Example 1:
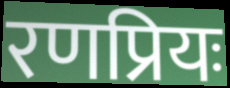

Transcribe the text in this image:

रणप्रियः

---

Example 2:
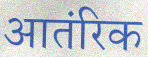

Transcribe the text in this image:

आतंरिक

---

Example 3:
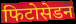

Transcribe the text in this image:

फिटोसेडन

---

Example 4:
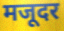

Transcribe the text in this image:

मजूदर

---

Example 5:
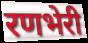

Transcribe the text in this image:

रणभेरी